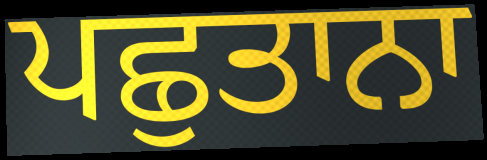
ਪਛੁਤਾਨਾ